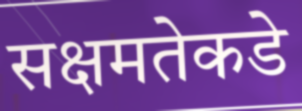
सक्षमतेकडे